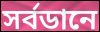
সর্বডানে